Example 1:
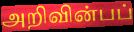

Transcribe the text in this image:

அறிவின்பப்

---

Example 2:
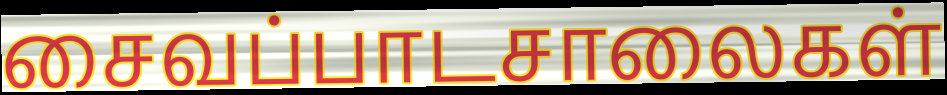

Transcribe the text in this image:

சைவப்பாடசாலைகள்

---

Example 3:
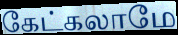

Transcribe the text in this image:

கேட்கலாமே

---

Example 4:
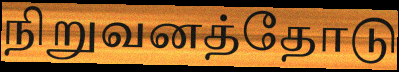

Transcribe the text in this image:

நிறுவனத்தோடு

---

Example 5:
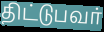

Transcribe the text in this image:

திட்டுபவர்